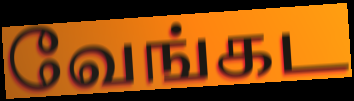
வேங்கட